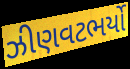
ઝીણવટભર્યો